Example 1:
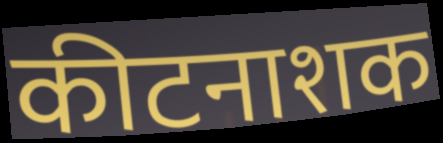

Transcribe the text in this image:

कीटनाशक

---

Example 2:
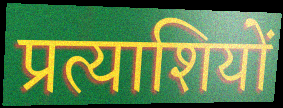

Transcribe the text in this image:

प्रत्याशियों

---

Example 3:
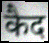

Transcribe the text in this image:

कैद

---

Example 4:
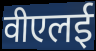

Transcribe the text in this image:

वीएलई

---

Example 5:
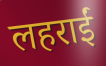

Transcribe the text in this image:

लहराईं